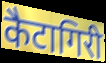
कैटागिरी